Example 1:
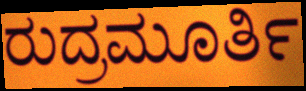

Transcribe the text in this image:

ರುದ್ರಮೂರ್ತಿ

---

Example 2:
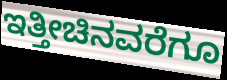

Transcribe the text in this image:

ಇತ್ತೀಚಿನವರೆಗೂ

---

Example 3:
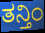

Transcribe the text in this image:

ತನ್ತಿಂ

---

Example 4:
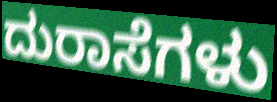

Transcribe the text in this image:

ದುರಾಸೆಗಳು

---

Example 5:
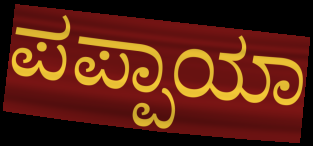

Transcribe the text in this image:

ಪಪ್ಪಾಯಾ